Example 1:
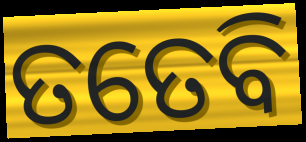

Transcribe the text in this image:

ତତେବି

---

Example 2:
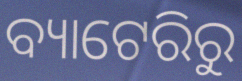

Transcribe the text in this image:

ବ୍ୟାଟେରିରୁ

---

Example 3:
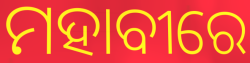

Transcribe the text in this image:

ମହାବୀରେ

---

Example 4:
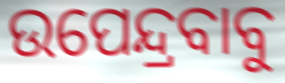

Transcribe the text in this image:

ଉପେନ୍ଦ୍ରବାବୁ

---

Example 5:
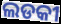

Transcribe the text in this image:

ଲଡକୀ